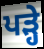
ਪਡ਼੍ਹੇ